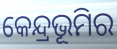
କେନ୍ଦ୍ରଭୂମିର